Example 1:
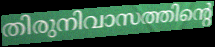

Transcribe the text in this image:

തിരുനിവാസത്തിന്റെ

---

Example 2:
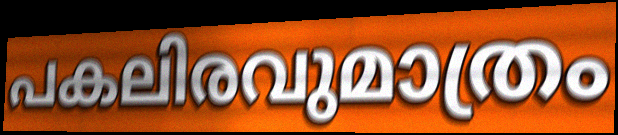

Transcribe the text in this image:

പകലിരവുമാത്രം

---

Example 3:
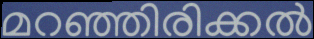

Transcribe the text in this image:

മറഞ്ഞിരിക്കൽ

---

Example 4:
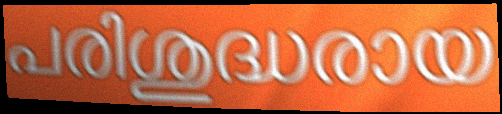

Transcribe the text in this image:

പരിശുദ്ധരായ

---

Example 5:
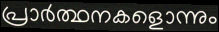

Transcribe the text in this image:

പ്രാർത്ഥനകളൊന്നും